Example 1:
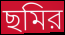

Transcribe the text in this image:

ছমির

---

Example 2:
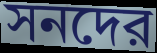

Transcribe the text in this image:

সনদের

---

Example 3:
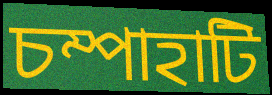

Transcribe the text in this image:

চম্পাহাটি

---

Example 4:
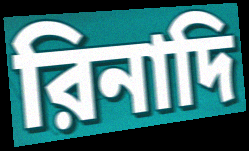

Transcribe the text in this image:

রিনাদি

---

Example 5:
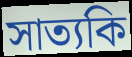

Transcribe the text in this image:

সাত্যকি